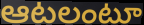
ఆటలంటూ